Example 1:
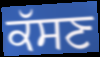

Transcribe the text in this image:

ਕੱਸਣ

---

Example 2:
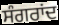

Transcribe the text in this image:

ਸੰਗਰਾਂਦ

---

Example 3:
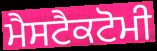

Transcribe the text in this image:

ਮੈਸਟੈਕਟੋਮੀ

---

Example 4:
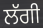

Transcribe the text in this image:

ਲੱਗੀ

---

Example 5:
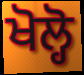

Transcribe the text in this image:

ਖੋਲ੍ਹੋ